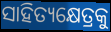
ସାହିତ୍ୟକ୍ଷେତ୍ରକୁ